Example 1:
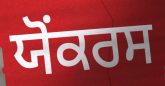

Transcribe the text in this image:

ਯੋੰਕਰਸ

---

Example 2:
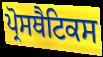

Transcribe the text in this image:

ਪ੍ਰੋਸਥੈਟਿਕਸ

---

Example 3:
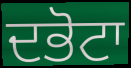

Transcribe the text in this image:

ਦਭੋਟਾ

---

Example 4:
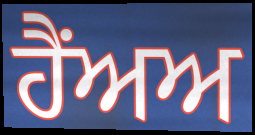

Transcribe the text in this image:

ਹੈਂਅਅ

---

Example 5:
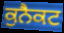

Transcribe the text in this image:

ਕੁਨੈਕਟ